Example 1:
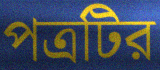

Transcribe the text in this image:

পত্রটির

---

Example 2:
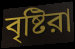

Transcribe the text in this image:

বৃষ্টিরা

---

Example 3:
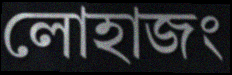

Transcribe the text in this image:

লোহাজং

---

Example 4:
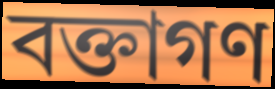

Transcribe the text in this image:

বক্তাগণ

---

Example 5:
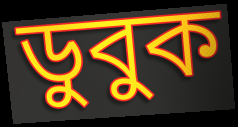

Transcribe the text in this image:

ডুবুক